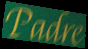
Padre